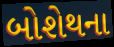
બોશેથના